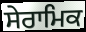
ਸੇਰਾਮਿਕ